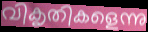
വികൃതികളെന്നു